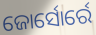
ଜୋର୍ସୋର୍ରେ